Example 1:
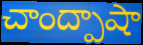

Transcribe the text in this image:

చాంద్పాషా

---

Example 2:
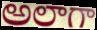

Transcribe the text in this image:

అలాగా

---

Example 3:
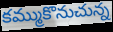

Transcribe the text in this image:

కమ్ముకొనుచున్న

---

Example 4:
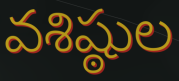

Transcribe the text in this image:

వశిష్ఠుల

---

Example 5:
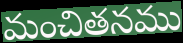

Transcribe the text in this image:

మంచితనము